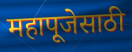
महापूजेसाठी